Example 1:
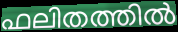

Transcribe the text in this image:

ഫലിതത്തിൽ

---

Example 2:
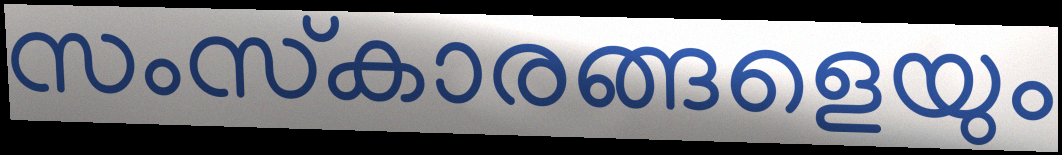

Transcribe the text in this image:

സംസ്‌കാരങ്ങളെയും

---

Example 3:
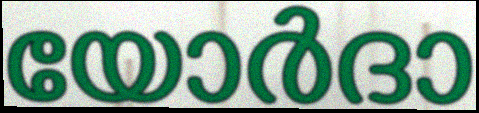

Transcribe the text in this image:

യോർദാ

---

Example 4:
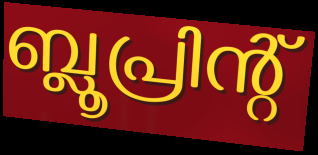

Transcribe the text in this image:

ബ്ലൂപ്രിന്റ്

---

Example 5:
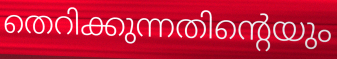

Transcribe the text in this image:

തെറിക്കുന്നതിന്റെയും